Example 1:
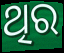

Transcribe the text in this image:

ଥିର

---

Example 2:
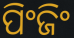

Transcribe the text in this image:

ପିଂଜିଂ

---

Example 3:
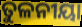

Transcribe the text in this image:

ତୁଳନୀୟା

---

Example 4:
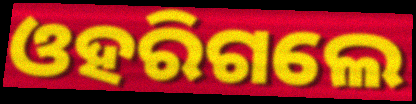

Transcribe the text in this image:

ଓହରିଗଲେ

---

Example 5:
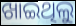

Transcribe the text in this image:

ଖାଇଥିଲୁ